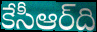
కేసీఆర్‌ది